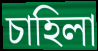
চাহিলা